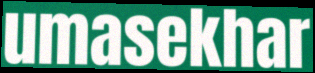
umasekhar